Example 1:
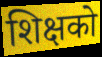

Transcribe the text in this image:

शिक्षको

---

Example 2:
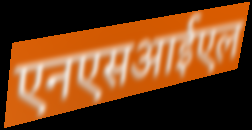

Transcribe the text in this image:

एनएसआईएल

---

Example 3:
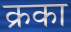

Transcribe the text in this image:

क्रका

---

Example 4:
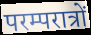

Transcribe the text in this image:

परम्परात्रों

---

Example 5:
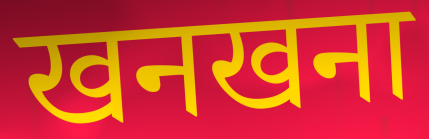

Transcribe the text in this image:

खनखना